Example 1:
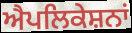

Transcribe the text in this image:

ਐਪਲਿਕੇਸ਼ਨਾਂ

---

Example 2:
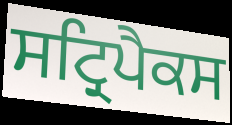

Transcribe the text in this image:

ਸਟ੍ਰਿਪੈਕਸ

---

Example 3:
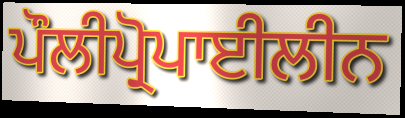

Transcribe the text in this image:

ਪੌਲੀਪ੍ਰੋਪਾਈਲੀਨ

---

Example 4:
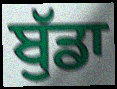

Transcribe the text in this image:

ਬੁੱਡਾ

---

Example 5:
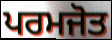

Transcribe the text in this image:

ਪਰਮਜੋਤ